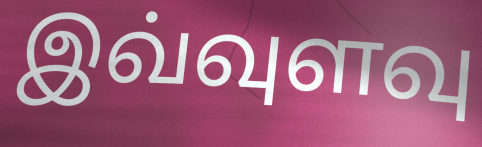
இவ்வுளவு